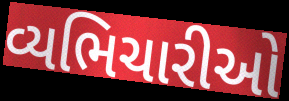
વ્યભિચારીઓ